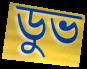
ডুভ